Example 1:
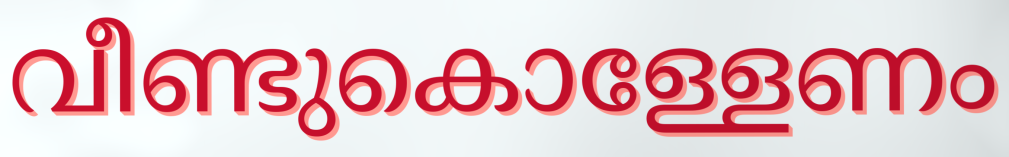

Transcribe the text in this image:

വീണ്ടുകൊള്ളേണം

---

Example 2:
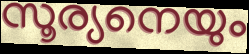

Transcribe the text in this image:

സൂര്യനെയും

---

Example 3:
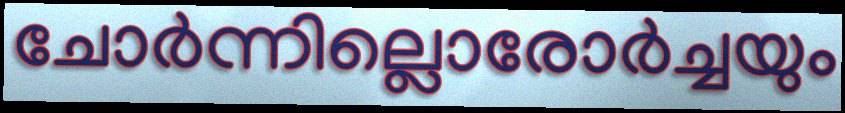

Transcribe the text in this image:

ചോർന്നില്ലൊരോർച്ചയും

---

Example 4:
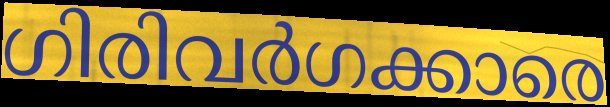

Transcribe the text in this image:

ഗിരിവർഗക്കാരെ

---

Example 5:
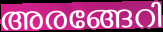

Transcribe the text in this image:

അരങ്ങേറി